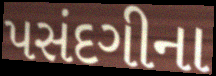
પસંદગીના